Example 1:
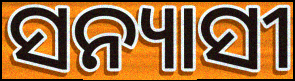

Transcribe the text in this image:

ସନ୍ୟାସୀ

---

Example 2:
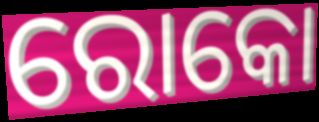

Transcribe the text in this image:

ରୋକୋ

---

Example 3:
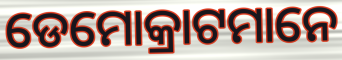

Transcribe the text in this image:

ଡେମୋକ୍ରାଟମାନେ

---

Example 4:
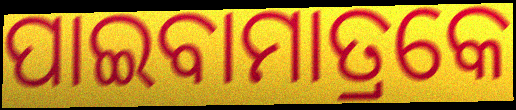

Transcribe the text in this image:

ପାଇବାମାତ୍ରକେ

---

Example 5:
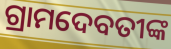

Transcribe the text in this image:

ଗ୍ରାମଦେବତୀଙ୍କ